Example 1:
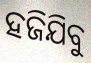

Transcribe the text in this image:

ହଜିଯିବୁ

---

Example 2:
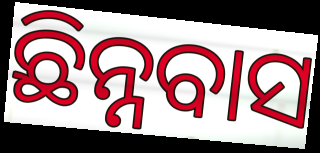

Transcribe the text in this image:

ଛିନ୍ନବାସ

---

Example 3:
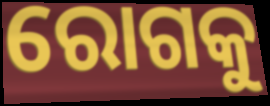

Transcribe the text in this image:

ରୋଗକୁ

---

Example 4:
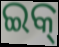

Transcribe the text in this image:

ଇକ୍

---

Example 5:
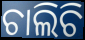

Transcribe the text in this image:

ଚାଲିଚି